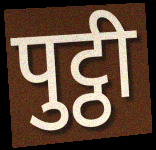
पुट्ठी